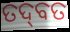
ତଦ୍‌ବତ